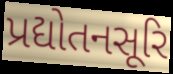
પ્રદ્યોતનસૂરિ